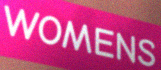
WOMENS